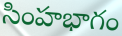
సింహభాగం